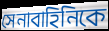
সেনাবাহিনিকে